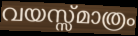
വയസ്സ്മാത്രം